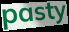
pasty